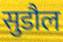
सुडौल